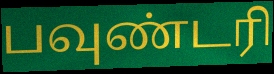
பவுண்டரி